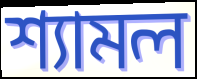
শ্যামল